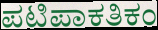
ಪಟಿಪಾಕತಿಕಂ